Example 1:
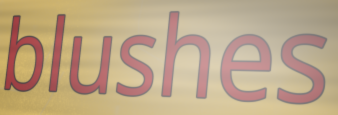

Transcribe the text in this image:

blushes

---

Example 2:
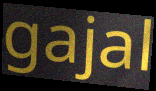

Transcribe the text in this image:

gajal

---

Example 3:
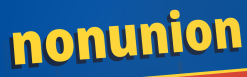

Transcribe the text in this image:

nonunion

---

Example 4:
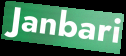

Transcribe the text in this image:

Janbari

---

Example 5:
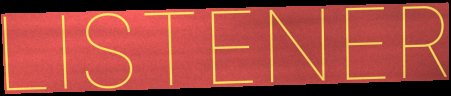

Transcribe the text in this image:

LISTENER